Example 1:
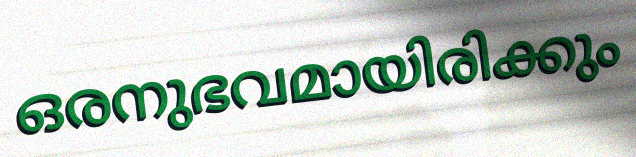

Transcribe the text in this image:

ഒരനുഭവമായിരിക്കും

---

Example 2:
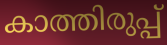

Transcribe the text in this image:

കാത്തിരുപ്പ്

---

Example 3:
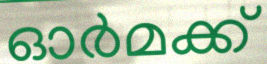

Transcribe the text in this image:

ഓർമക്ക്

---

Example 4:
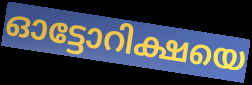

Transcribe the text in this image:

ഓട്ടോറിക്ഷയെ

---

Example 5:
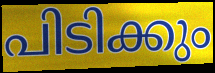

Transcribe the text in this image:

പിടിക്കും